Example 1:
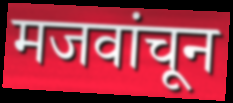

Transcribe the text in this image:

मजवांचून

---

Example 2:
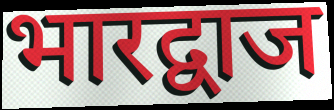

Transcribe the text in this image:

भारद्वाज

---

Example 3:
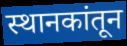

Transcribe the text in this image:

स्थानकांतून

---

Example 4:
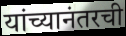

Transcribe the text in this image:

यांच्यानंतरची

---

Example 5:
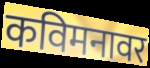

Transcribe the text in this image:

कविमनावर